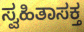
ಸ್ವಹಿತಾಸಕ್ತ